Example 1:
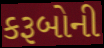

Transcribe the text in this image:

કરૂબોની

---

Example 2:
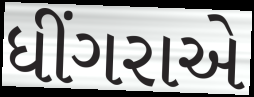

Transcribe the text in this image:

ધીંગરાએ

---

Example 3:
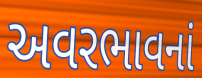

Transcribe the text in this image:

અવરભાવનાં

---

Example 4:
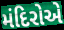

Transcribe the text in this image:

મંદિરોએ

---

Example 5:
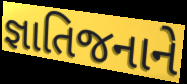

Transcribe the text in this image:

જ્ઞાતિજનાને